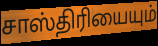
சாஸ்திரியையும்